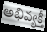
అభివ్యక్తీ